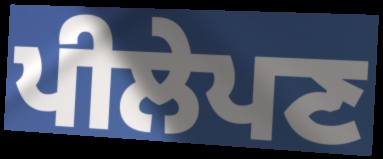
ਪੀਲੇਪਣ